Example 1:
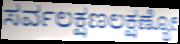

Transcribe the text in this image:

ಸರ್ವಲಕ್ಷಣಲಕ್ಷಣ್ಯೋ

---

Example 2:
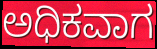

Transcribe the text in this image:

ಅಧಿಕವಾಗ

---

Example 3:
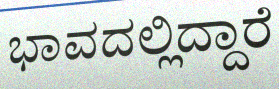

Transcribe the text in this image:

ಭಾವದಲ್ಲಿದ್ದಾರೆ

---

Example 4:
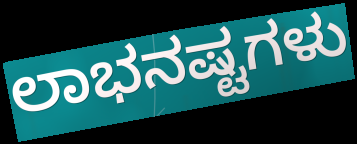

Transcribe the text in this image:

ಲಾಭನಷ್ಟಗಳು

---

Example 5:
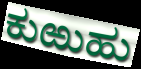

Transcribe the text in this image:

ಕುಱುಹು